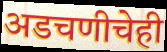
अडचणीचेही